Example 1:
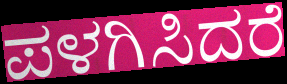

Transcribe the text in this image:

ಪಳಗಿಸಿದರೆ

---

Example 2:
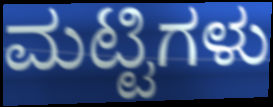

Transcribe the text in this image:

ಮಟ್ಟಿಗಳು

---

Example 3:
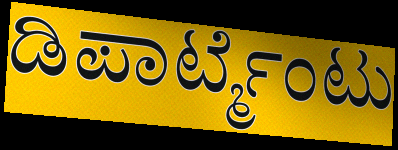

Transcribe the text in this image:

ಡಿಪಾರ್ಟ್ಮೆಂಟು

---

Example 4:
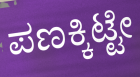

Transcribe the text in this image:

ಪಣಕ್ಕಿಟ್ಟೇ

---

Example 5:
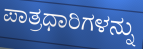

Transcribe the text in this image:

ಪಾತ್ರಧಾರಿಗಳನ್ನು